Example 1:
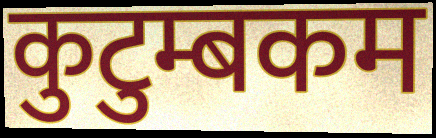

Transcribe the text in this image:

कुटुम्बकम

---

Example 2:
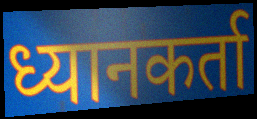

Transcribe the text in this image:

ध्यानकर्ता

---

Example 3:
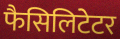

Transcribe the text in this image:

फैसिलिटेटर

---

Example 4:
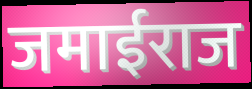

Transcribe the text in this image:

जमाईराज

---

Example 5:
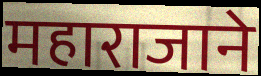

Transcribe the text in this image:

महाराजाने